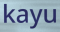
kayu